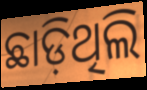
ଛାଡ଼ିଥିଲି